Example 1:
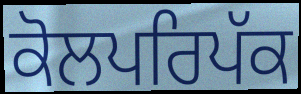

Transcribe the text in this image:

ਕੋਲਪਰਿਪੱਕ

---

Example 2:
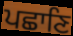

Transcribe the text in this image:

ਪਛਾਣਿ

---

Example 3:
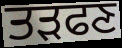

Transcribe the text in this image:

ਤੜਫਣ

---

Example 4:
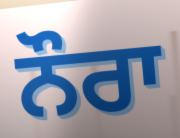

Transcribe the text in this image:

ਨੌਰਾ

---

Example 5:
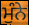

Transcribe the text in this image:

ਮੁੰਨੇ